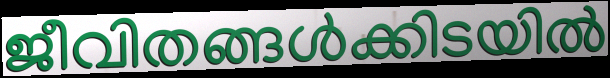
ജീവിതങ്ങൾക്കിടയിൽ